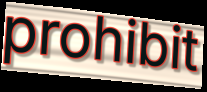
prohibit